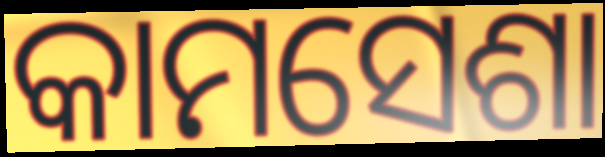
କାମସେଶା